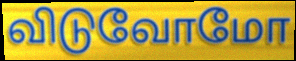
விடுவோமோ